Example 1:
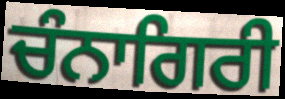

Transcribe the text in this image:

ਚੰਨਾਗਿਰੀ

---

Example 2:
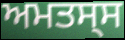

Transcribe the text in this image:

ਅਮਤਸ੍ਸ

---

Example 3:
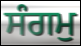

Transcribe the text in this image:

ਸੰਗਮੁ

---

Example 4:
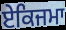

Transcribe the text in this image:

ਏਕਿਜਮਾ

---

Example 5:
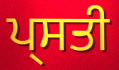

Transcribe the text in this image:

ਪ੍ਸਤੀ